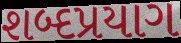
શબ્દપ્રયાગ